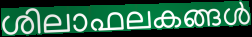
ശിലാഫലകങ്ങൾ